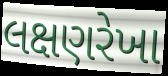
લક્ષણરેખા